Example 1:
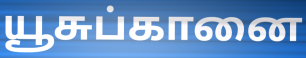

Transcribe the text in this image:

யூசுப்கானை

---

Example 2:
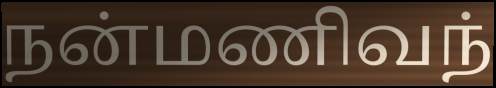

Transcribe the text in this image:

நன்மணிவந்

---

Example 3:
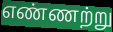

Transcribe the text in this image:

எண்ணற்று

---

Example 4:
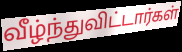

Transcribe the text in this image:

வீழ்ந்துவிட்டார்கள்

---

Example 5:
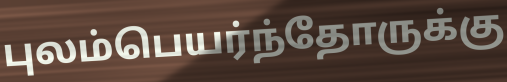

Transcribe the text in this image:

புலம்பெயர்ந்தோருக்கு